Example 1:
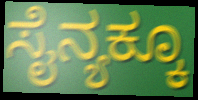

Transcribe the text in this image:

ಸೈನ್ಯಕ್ಕೂ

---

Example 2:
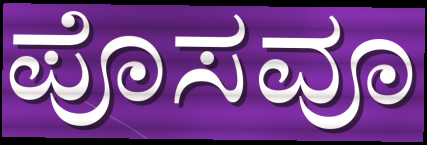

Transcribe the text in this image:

ಪೊಸವೂ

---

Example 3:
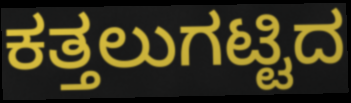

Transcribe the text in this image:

ಕತ್ತಲುಗಟ್ಟಿದ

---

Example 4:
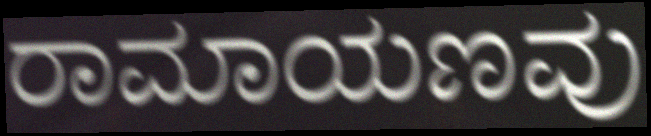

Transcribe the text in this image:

ರಾಮಾಯಣವು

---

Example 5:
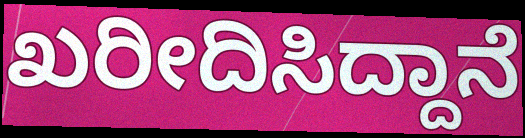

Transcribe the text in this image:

ಖರೀದಿಸಿದ್ದಾನೆ